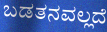
ಬಡತನವಲ್ಲದೆ